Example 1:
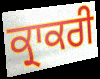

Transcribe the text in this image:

ਕ੍ਰਾਕਰੀ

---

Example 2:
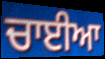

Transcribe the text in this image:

ਚਾਈਆ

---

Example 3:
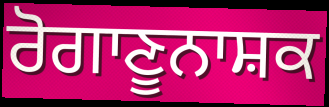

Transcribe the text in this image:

ਰੋਗਾਣੂਨਾਸ਼ਕ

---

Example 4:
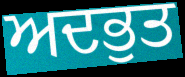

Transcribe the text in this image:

ਅਦਭੁਤ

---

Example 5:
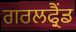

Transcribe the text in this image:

ਗਰਲਫ੍ਰੈਂਡ